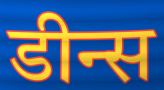
डीन्स